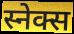
स्नेक्स